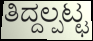
ತಿದ್ದಲ್ಪಟ್ಟ